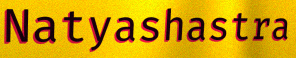
Natyashastra